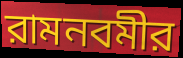
রামনবমীর